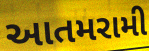
આતમરામી